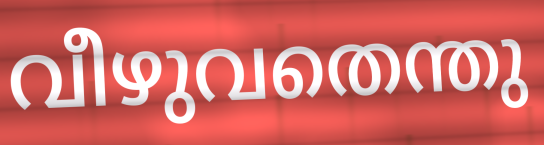
വീഴുവതെന്തു